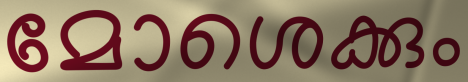
മോശെക്കും